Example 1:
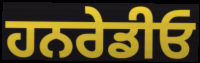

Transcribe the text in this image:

ਹਨਰੇਡੀਓ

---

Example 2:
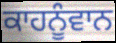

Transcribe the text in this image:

ਕਾਹਨੂੰਵਾਨ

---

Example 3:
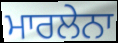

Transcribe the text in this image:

ਮਾਰਲੇਨਾ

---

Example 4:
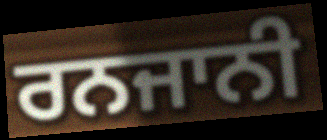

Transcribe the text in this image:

ਰਨਜਾਨੀ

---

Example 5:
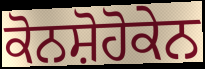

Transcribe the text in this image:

ਕੋਨਸ਼ੋਹੋਕੇਨ